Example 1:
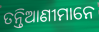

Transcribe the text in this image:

ତନ୍ତିଆଣୀମାନେ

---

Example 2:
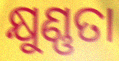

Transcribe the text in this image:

କ୍ଷୁଣ୍ଣତା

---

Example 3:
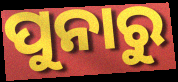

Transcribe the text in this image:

ପୁନାରୁ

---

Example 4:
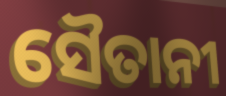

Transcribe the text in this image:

ସୈତାନୀ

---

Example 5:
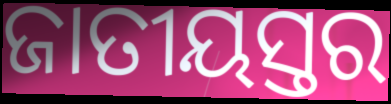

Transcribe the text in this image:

ଜାତୀୟସ୍ତର